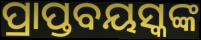
ପ୍ରାପ୍ତବୟସ୍କଙ୍କ